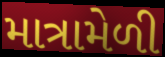
માત્રામેળી